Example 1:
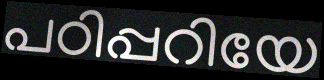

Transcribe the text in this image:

പഠിപ്പറിയേ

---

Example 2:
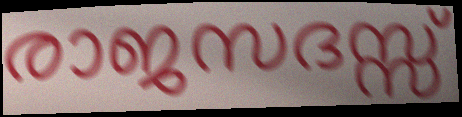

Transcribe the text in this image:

രാജസദസ്സ്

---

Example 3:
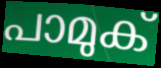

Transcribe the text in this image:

പാമുക്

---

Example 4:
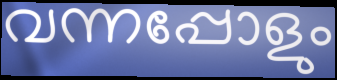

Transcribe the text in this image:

വന്നപ്പോളും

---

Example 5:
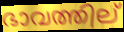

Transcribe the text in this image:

ഭാവത്തില്